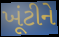
ખૂંટીને